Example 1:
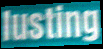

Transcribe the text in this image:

lusting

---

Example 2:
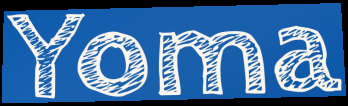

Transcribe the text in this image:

Yoma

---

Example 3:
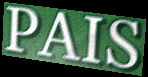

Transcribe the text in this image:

PAIS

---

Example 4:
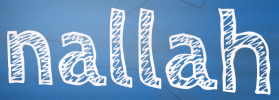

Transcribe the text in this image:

nallah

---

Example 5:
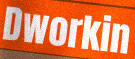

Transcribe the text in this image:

Dworkin